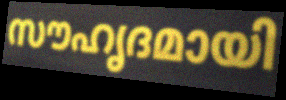
സൗഹൃദമായി